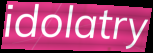
idolatry